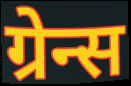
ग्रेन्स